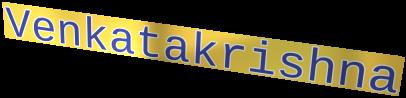
Venkatakrishna